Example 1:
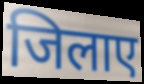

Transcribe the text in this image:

जिलाए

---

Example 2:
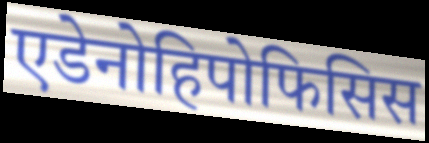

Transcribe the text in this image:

एडेनोहिपोफिसिस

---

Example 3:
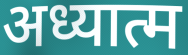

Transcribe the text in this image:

अध्यात्म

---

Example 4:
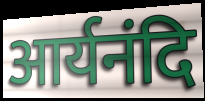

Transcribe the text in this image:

आर्यनंदि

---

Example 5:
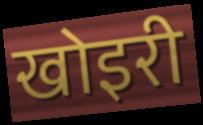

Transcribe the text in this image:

खोइरी